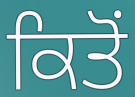
ਕਿਤੋਂ